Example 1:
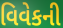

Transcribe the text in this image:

વિવેકની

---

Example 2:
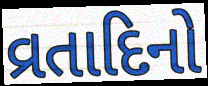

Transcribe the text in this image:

વ્રતાદિનો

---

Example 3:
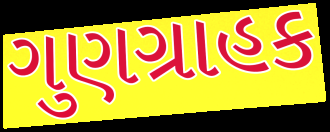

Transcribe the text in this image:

ગુણગ્રાહક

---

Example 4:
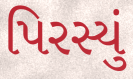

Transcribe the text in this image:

પિરસ્યું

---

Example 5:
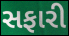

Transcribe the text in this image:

સફારી